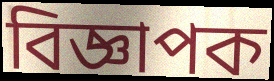
বিজ্ঞাপক